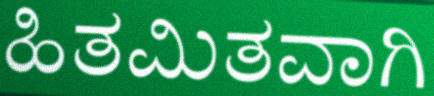
ಹಿತಮಿತವಾಗಿ